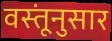
वस्तूंनुसार